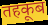
तहकूब